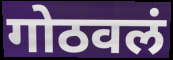
गोठवलं